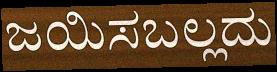
ಜಯಿಸಬಲ್ಲದು